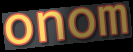
onom